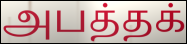
அபத்தக்